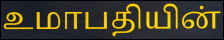
உமாபதியின்